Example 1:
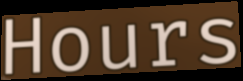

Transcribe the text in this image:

Hours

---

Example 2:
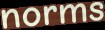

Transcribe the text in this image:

norms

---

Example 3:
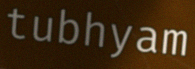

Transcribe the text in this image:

tubhyam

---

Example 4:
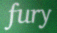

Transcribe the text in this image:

fury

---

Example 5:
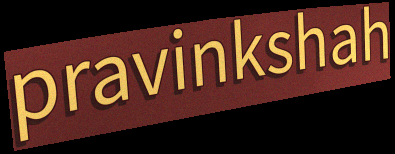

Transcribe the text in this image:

pravinkshah